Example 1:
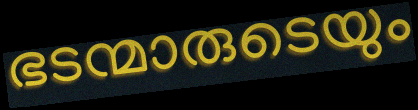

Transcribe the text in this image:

ഭടന്മാരുടെയും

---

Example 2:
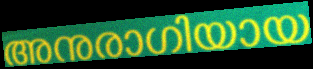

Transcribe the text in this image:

അനുരാഗിയായ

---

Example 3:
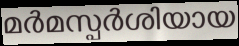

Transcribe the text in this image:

മർമസ്പർശിയായ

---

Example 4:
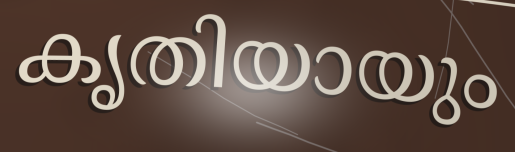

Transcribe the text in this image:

കൃതിയായും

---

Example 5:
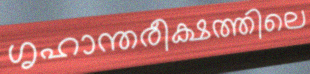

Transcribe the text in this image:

ഗൃഹാന്തരീക്ഷത്തിലെ